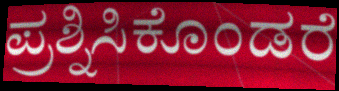
ಪ್ರಶ್ನಿಸಿಕೊಂಡರೆ